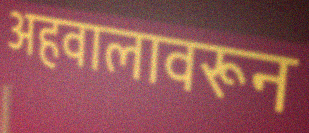
अहवालावरून